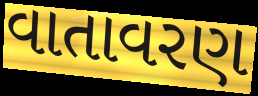
વાતાવરણ